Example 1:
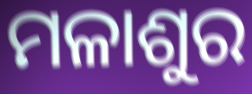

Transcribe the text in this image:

ମଳାଶୁର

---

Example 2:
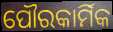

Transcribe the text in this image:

ପୌରକାର୍ମିକ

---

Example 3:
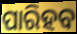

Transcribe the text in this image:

ପାରିହବ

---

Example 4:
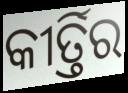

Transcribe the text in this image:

କୀର୍ତ୍ତିର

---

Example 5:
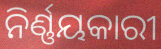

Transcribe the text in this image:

ନିର୍ଣ୍ଣୟକାରୀ